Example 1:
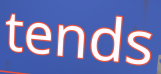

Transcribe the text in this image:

tends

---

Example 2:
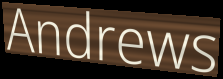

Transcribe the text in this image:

Andrews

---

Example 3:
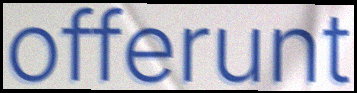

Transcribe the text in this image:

offerunt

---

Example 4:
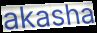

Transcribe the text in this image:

akasha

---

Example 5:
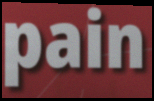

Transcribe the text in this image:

pain